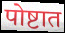
पोष्टात